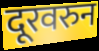
दूरवरुन